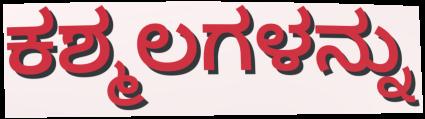
ಕಶ್ಮಲಗಳನ್ನು